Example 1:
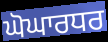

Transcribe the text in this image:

ਘੋਘਾਰਧਰ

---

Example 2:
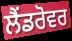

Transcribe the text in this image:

ਲੈਂਡਰੋਵਰ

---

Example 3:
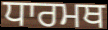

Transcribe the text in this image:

ਧਾਰਮਥ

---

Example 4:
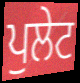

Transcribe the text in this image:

ਪੁਲੇਟ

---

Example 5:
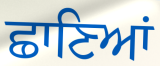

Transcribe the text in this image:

ਛਾਣਿਆਂ